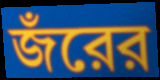
জঁরের